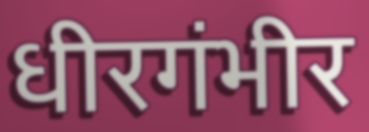
धीरगंभीर